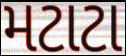
મટાટા